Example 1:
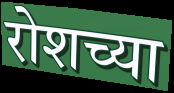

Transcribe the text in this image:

रोशच्या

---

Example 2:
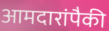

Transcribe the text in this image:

आमदारांपैकी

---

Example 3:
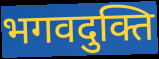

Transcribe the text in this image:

भगवदुक्ति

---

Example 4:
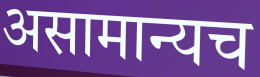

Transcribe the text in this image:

असामान्यच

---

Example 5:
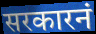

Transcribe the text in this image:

सरकारनं